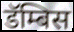
डॅम्बिस